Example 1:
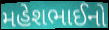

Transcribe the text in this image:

મહેશભાઈનો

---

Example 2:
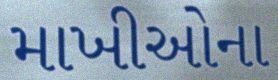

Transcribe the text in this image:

માખીઓના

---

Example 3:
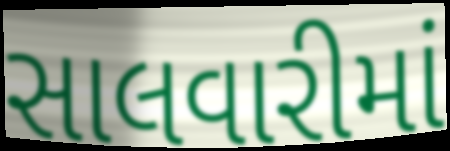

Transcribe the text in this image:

સાલવારીમાં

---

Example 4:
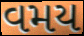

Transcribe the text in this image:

વમય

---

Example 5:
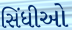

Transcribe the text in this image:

સિંધીઓ